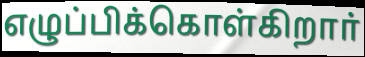
எழுப்பிக்கொள்கிறார்